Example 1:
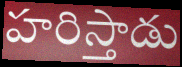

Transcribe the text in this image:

హరిస్తాడు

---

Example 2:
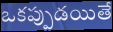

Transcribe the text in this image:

ఒకప్పుడయితే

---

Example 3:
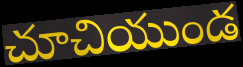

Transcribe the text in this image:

చూచియుండ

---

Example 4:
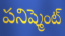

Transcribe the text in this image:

పనిష్మెంట్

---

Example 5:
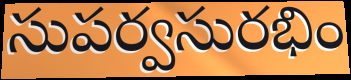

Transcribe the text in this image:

సుపర్వసురభిం